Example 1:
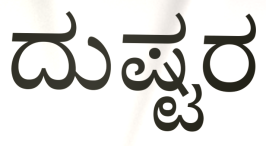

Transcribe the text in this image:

ದುಷ್ಟರ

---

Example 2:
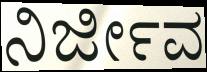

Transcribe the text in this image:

ನಿರ್ಜೀವ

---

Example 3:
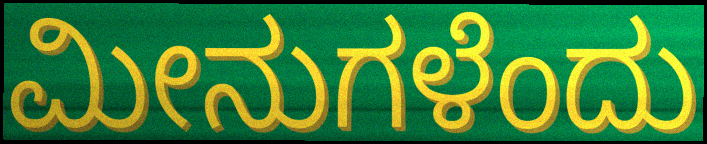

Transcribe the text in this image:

ಮೀನುಗಳೆಂದು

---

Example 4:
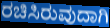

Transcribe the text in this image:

ರಚಿಸಿರುವುದಾಗಿ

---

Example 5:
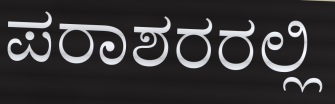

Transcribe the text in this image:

ಪರಾಶರರಲ್ಲಿ